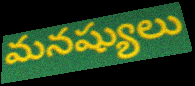
మనష్యులు